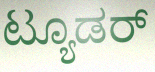
ಟ್ಯೂಡರ್